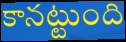
కానట్టుంది